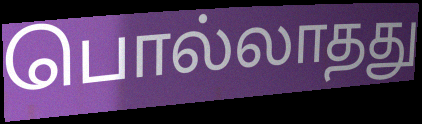
பொல்லாதது